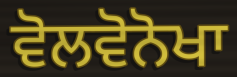
ਵੋਲਵੋਨੋਖਾ